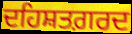
ਦਹਿਸ਼ਤਗ਼ਰਦ